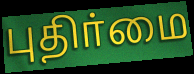
புதிர்மை